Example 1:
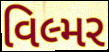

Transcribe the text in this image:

વિલ્મર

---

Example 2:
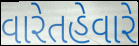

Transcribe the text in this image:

વારેતહેવારે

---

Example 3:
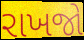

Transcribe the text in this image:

રાખજો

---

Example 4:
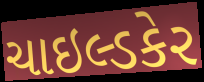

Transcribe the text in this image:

ચાઇલ્ડકેર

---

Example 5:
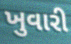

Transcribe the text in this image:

ખુવારી